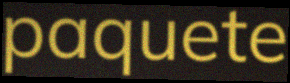
paquete